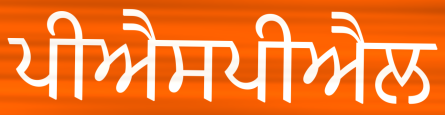
ਪੀਐਸਪੀਐਲ